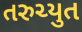
તરુચ્યુત